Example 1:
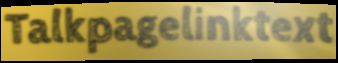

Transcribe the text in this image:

Talkpagelinktext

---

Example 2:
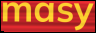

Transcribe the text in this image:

masy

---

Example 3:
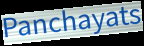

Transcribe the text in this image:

Panchayats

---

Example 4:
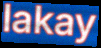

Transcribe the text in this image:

lakay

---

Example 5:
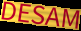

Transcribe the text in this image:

DESAM